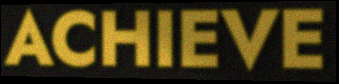
ACHIEVE